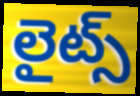
లైట్స్